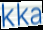
kka